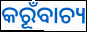
କରୂଁବାଚ୍ୟ